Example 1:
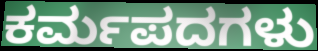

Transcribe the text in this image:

ಕರ್ಮಪದಗಳು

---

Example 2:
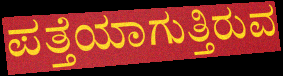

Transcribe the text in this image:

ಪತ್ತೆಯಾಗುತ್ತಿರುವ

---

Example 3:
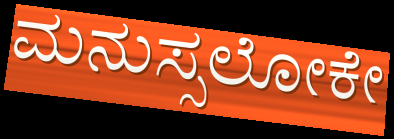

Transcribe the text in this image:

ಮನುಸ್ಸಲೋಕೇ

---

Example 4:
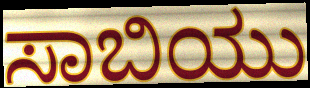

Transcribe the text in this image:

ಸಾಬಿಯು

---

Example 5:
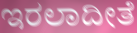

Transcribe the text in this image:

ಇರಲಾದೀತೆ